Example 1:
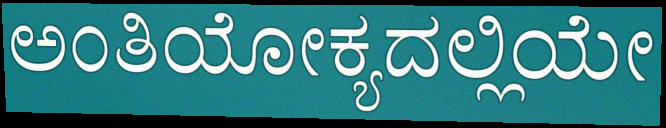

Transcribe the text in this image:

ಅಂತಿಯೋಕ್ಯದಲ್ಲಿಯೇ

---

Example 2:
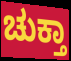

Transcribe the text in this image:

ಚುಕ್ತಾ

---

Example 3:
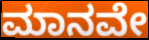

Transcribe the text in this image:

ಮಾನವೇ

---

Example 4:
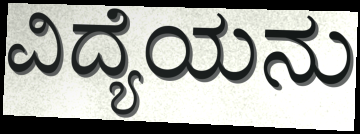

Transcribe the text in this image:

ವಿದ್ಯೆಯನು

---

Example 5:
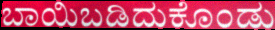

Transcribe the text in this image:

ಬಾಯಿಬಡಿದುಕೊಂಡು